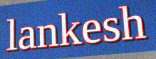
lankesh